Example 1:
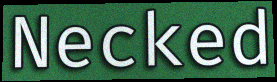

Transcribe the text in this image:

Necked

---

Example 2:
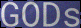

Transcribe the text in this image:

GODs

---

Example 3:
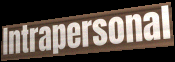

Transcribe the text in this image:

Intrapersonal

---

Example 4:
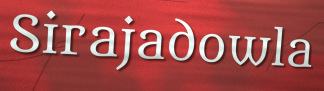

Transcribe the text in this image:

Sirajadowla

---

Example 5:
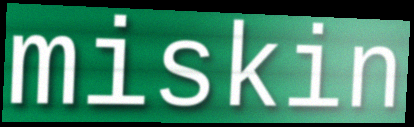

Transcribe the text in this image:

miskin